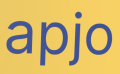
apjo